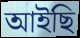
আইছি